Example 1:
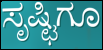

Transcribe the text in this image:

ಸೃಷ್ಟಿಗೂ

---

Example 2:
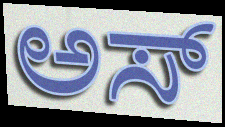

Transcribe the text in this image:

ಅಸ್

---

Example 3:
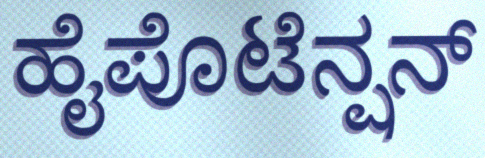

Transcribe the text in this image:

ಹೈಪೊಟೆನ್ಷನ್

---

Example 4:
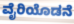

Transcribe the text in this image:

ವೈರಿಯೊಡನೆ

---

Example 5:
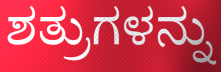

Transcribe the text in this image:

ಶತ್ರುಗಳನ್ನು